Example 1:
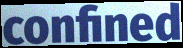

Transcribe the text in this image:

confined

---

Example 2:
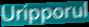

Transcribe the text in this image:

Uripporul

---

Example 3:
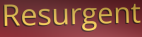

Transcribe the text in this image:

Resurgent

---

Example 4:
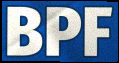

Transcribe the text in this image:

BPF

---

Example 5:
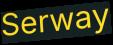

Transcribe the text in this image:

Serway